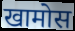
खामोस